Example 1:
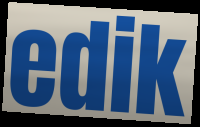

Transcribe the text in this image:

edik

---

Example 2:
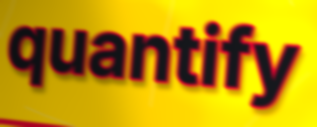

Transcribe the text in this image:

quantify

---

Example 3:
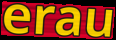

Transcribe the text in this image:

erau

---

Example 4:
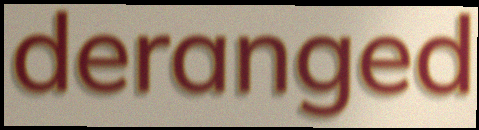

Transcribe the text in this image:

deranged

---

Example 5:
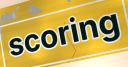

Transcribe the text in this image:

scoring